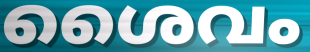
ശൈവം